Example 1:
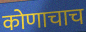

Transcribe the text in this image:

कोणाचाच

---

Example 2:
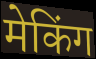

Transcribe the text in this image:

मेकिंग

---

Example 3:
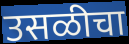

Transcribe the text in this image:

उसळीचा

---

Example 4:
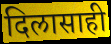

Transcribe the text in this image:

दिलासाही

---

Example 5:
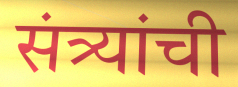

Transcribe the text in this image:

संत्र्यांची